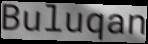
Buluqan